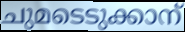
ചുമടെടുക്കാന്